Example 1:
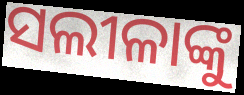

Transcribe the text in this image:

ସଲୀଳାଙ୍କୁ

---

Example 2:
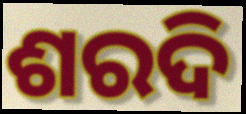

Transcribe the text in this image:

ଶରଦି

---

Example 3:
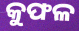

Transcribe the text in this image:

କୁଫଳ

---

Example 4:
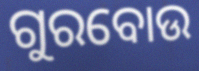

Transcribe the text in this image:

ଗୁରବୋଉ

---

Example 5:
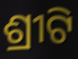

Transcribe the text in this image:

ଶ୍ରୀଟି